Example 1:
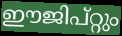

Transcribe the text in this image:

ഈജിപ്റ്റും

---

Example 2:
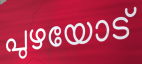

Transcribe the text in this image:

പുഴയോട്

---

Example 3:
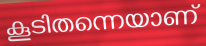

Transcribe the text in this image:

കൂടിതന്നെയാണ്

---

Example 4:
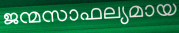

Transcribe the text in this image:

ജന്മസാഫല്യമായ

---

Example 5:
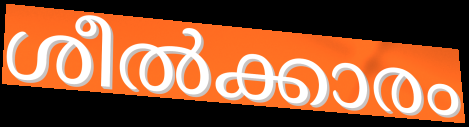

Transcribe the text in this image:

ശീൽക്കാരം